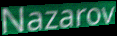
Nazarov